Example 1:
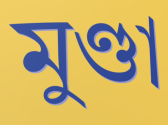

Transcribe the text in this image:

মুণ্ডা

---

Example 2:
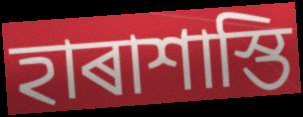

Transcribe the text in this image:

হাৰাশাস্তি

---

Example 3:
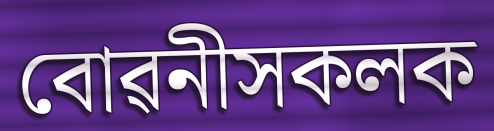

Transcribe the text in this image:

বোৱনীসকলক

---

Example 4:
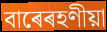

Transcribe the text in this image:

বাৰেৰহণীয়া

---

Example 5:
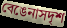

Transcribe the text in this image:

বেঙেনাসদৃশ